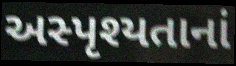
અસ્પૃશ્યતાનાં